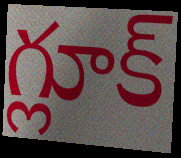
గ్లూక్